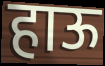
हाऊ